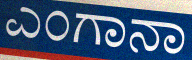
ಎಂಗಾನಾ